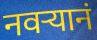
नवऱ्यानं